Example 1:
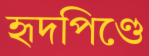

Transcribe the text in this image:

হৃদপিণ্ডে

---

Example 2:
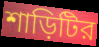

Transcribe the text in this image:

শাড়িটির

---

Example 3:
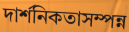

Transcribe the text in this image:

দার্শনিকতাসম্পন্ন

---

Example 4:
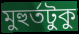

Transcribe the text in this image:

মুহুর্তটুকু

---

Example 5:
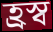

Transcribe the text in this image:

হ্রস্ব